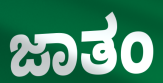
ಜಾತಂ